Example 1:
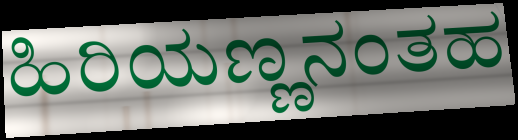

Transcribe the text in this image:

ಹಿರಿಯಣ್ಣನಂತಹ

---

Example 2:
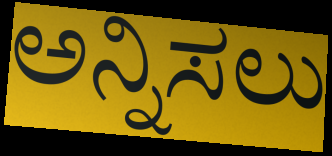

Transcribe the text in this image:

ಅನ್ನಿಸಲು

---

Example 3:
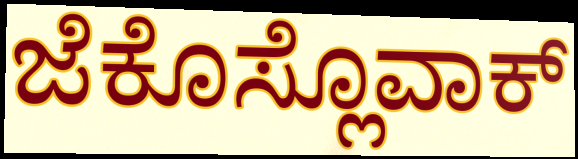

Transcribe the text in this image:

ಜೆಕೊಸ್ಲೊವಾಕ್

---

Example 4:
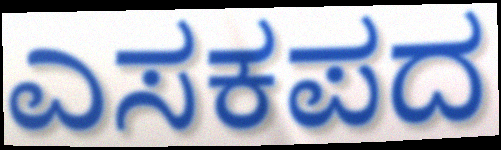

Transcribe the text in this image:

ಎಸಕಪದ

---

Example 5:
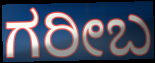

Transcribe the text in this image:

ಗರೀಬ